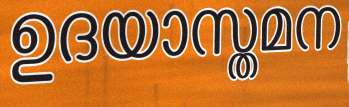
ഉദയാസ്തമന